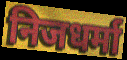
निजधर्मा